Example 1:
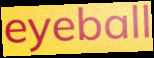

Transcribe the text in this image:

eyeball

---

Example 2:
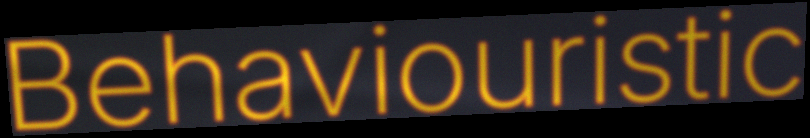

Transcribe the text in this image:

Behaviouristic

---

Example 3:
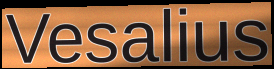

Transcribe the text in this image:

Vesalius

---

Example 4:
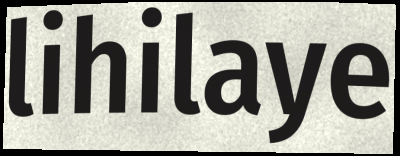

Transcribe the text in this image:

lihilaye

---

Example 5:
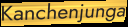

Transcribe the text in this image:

Kanchenjunga